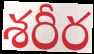
శరీర